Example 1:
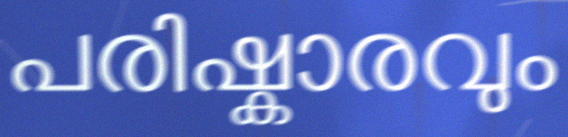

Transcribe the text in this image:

പരിഷ്കാരവും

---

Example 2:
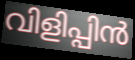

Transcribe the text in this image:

വിളിപ്പിൻ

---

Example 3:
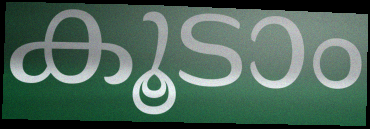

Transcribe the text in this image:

കൂടാം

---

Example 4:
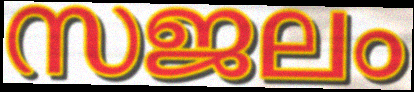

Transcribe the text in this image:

സജലം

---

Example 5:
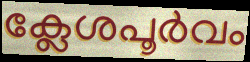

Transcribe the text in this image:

ക്ലേശപൂർവം